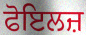
ਫੋਇਲਜ਼